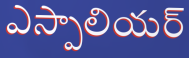
ఎస్పాలియర్